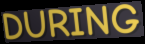
DURING